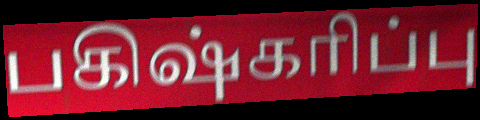
பகிஷ்கரிப்பு